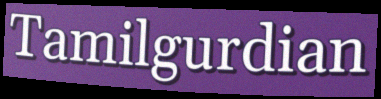
Tamilgurdian